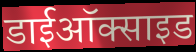
डाईऑक्साइड